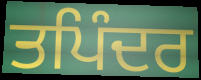
ਤਪਿੰਦਰ